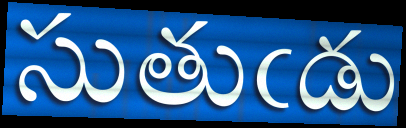
సుతుఁడు